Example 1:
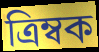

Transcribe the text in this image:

ত্রিম্বক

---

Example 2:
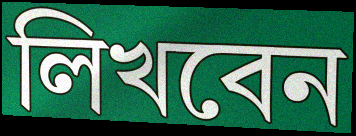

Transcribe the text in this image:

লিখবেন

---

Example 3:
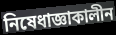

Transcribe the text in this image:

নিষেধাজ্ঞাকালীন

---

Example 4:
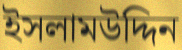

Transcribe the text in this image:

ইসলামউদ্দিন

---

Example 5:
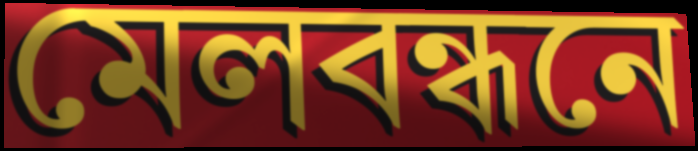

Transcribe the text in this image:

মেলবন্ধনে